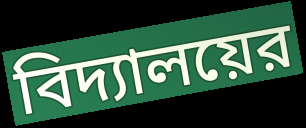
বিদ্যালয়ের